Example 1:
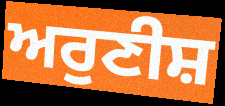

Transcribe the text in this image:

ਅਰੁਣੀਸ਼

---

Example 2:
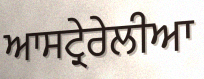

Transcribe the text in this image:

ਆਸਟ੍ਰੇਰੇਲੀਆ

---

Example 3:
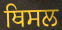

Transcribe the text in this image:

ਥਿਸਲ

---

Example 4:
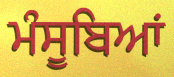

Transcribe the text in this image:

ਮੰਸੂਬਿਆਂ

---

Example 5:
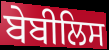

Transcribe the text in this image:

ਬੇਬੀਲਿਸ